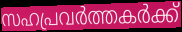
സഹപ്രവർത്തകർക്ക്